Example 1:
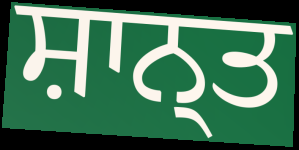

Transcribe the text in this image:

ਸ਼ਾਨ੍ਤ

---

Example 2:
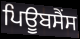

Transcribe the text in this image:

ਪਿਊਬਸੈਂਸ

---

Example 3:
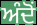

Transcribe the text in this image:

ਅੰਦੋਂ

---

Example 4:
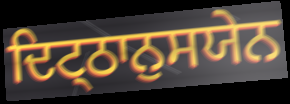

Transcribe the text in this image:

ਦਿਟ੍ਠਾਨੁਸਯੇਨ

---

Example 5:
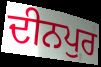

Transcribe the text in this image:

ਦੀਨਪੁਰ